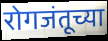
रोगजंतूच्या